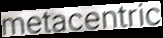
metacentric